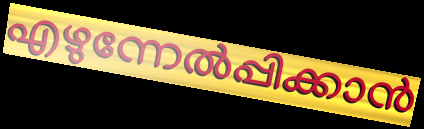
എഴുന്നേൽപ്പിക്കാൻ